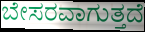
ಬೇಸರವಾಗುತ್ತದೆ